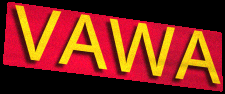
VAWA